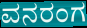
ವನರಂಗ